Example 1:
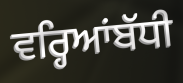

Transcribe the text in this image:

ਵਰ੍ਹਿਆਂਬੱਧੀ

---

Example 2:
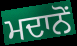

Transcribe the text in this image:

ਮਦਾਨੋਂ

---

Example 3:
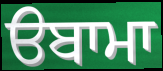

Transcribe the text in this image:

ੳਬਾਮਾ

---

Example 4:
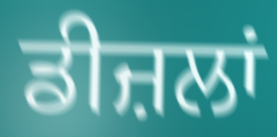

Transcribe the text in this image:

ਡੀਜ਼ਲਾਂ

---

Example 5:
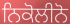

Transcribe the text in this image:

ਨਿਕੋਲੀਨੋ